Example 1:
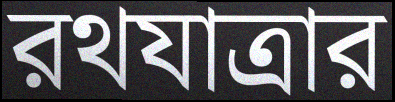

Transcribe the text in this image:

রথযাত্রার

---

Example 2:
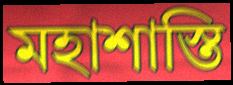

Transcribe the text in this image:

মহাশাস্তি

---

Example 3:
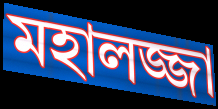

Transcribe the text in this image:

মহালজ্জা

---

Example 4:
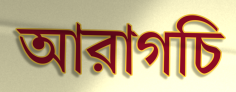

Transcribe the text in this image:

আরাগচি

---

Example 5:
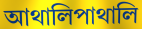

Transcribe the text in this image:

আথালিপাথালি